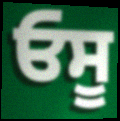
ਓਸੂ